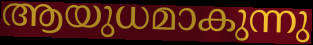
ആയുധമാകുന്നു